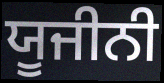
ਯੂਜੀਨੀ